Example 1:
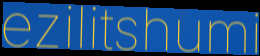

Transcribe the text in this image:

ezilitshumi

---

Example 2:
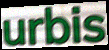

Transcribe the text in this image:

urbis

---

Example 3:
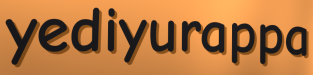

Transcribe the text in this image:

yediyurappa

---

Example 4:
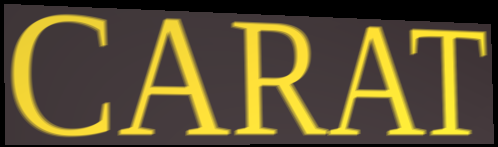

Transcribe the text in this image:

CARAT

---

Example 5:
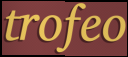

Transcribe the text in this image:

trofeo